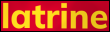
latrine